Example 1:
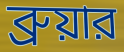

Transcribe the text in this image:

ব্রুয়ার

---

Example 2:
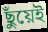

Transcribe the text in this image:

ছুঁয়েই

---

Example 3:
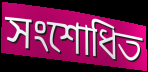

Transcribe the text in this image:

সংশোধিত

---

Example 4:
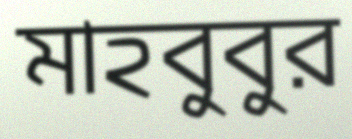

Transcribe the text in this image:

মাহবুবুর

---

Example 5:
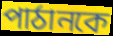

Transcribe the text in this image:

পাঠানকে